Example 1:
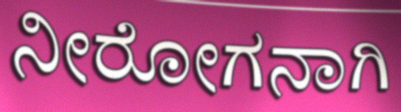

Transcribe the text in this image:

ನೀರೋಗನಾಗಿ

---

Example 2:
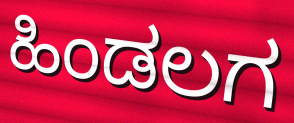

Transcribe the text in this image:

ಹಿಂಡಲಗ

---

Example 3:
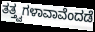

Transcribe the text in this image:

ತತ್ತ್ವಗಳಾವಾವೆಂದಡೆ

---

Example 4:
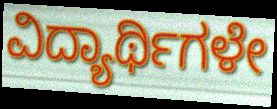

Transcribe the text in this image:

ವಿದ್ಯಾರ್ಥಿಗಳೇ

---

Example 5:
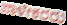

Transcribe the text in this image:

ಪಾಳೇಕರರು